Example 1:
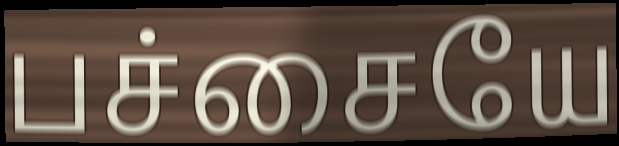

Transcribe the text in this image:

பச்சையே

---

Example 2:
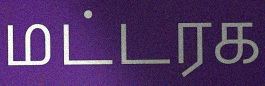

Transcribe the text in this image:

மட்டரக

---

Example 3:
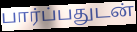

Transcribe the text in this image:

பார்ப்பதுடன்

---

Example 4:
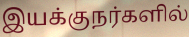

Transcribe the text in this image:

இயக்குநர்களில்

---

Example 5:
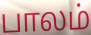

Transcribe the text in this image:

பாலம்